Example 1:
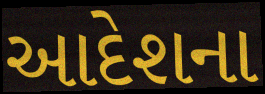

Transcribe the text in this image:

આદેશના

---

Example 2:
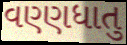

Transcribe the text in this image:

વણ્ણધાતુ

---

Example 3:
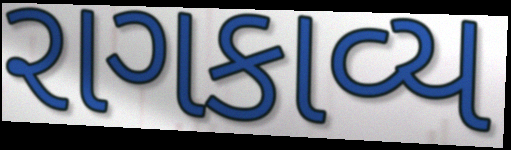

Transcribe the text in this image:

રાગકાવ્ય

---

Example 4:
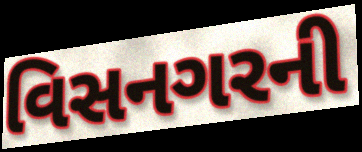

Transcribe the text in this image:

વિસનગરની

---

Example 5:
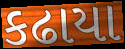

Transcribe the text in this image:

કઢાયા